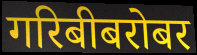
गरिबीबरोबर